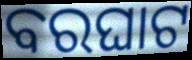
ବରଘାଟ